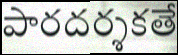
పారదర్శకతే